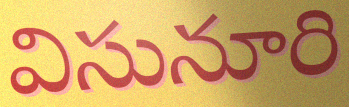
విసునూరి